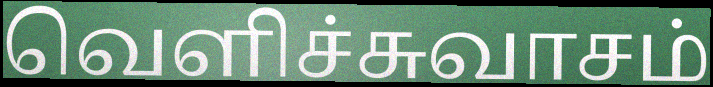
வெளிச்சுவாசம்